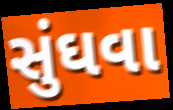
સુંઘવા